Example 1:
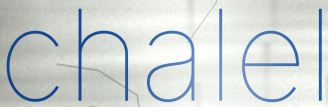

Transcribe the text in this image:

chalel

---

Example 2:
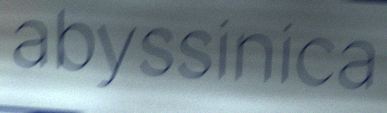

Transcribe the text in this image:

abyssinica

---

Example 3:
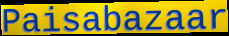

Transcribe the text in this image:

Paisabazaar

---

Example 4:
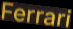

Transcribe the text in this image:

Ferrari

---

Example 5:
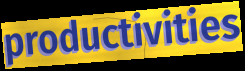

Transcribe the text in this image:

productivities